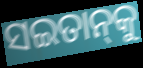
ସଇତାନ୍‌କୁ